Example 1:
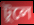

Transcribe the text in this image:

টুলে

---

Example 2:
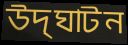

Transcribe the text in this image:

উদ্‌ঘাটন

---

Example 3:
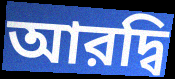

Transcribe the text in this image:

আরদ্বি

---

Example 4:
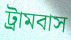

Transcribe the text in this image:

ট্রামবাস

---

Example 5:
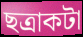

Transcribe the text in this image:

ছত্রাকটা